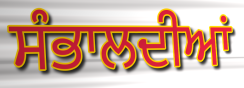
ਸੰਭਾਲਦੀਆਂ